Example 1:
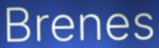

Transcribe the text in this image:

Brenes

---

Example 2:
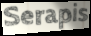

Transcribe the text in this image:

Serapis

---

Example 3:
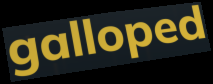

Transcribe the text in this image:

galloped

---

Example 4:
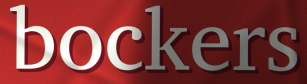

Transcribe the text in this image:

bockers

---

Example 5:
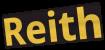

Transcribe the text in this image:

Reith